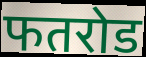
फतरोड